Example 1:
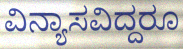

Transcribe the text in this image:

ವಿನ್ಯಾಸವಿದ್ದರೂ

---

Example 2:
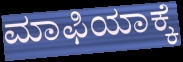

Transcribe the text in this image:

ಮಾಫಿಯಾಕ್ಕೆ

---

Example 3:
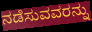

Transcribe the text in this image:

ನಡೆಸುವವರನ್ನು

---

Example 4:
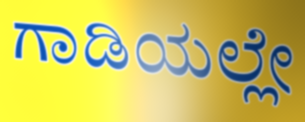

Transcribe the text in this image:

ಗಾಡಿಯಲ್ಲೇ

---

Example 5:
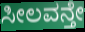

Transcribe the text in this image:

ಸೀಲವನ್ತೇ